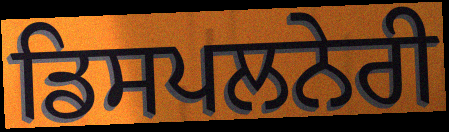
ਡਿਸਪਲਨੇਰੀ